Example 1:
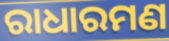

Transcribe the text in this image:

ରାଧାରମଣ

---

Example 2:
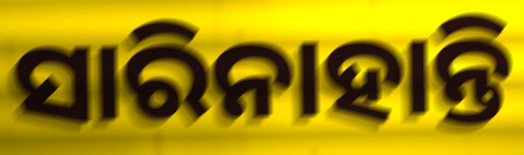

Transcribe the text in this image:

ସାରିନାହାନ୍ତି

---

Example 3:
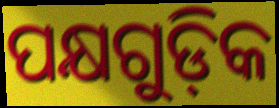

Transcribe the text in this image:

ପକ୍ଷଗୁଡ଼ିକ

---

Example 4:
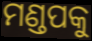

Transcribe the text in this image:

ମଣ୍ଡପକୁ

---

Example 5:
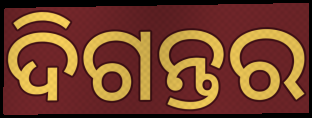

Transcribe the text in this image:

ଦିଗନ୍ତର